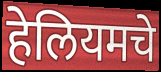
हेलियमचे